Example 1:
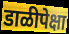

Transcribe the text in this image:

डाळीपेक्षा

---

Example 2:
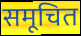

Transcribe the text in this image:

समूचित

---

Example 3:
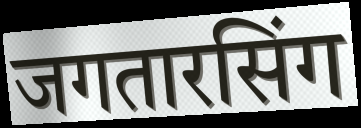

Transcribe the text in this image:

जगतारसिंग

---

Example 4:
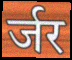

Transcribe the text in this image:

र्जर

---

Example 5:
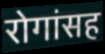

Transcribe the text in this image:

रोगांसह